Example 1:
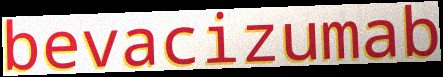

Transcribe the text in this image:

bevacizumab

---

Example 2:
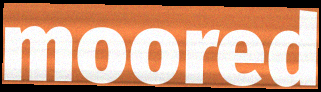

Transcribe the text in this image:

moored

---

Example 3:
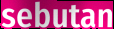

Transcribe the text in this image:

sebutan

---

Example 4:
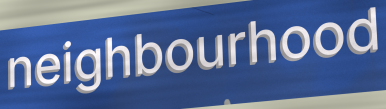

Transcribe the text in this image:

neighbourhood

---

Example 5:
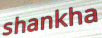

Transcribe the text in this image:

shankha